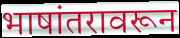
भाषांतरावरून